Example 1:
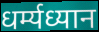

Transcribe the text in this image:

धर्म्यध्यान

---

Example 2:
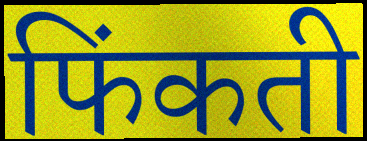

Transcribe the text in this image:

फिंकती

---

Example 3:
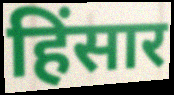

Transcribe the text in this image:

हिंसार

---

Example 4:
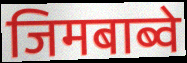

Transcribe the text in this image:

जिमबाब्वे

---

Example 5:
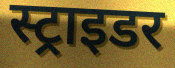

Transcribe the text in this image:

स्ट्राइडर